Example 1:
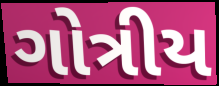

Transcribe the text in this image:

ગોત્રીય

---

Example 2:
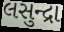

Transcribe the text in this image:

લસુન્દ્રા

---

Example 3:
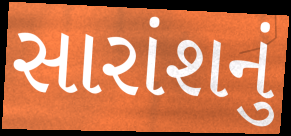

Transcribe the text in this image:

સારાંશનું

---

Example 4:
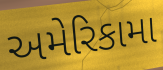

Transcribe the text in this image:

અમેરિકામા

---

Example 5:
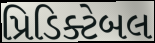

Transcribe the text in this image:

પ્રિડિક્ટેબલ